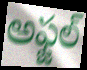
అఫ్జల్